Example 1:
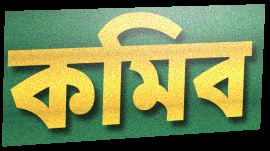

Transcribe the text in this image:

কমিব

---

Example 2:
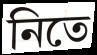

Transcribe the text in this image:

নিতে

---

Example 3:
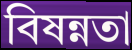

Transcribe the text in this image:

বিষন্নতা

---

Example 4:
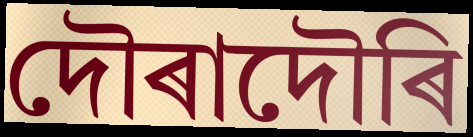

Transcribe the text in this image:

দৌৰাদৌৰি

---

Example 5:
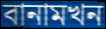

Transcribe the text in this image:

বানামখন